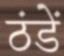
ठंडें